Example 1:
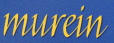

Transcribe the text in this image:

murein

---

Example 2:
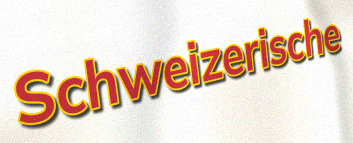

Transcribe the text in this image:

Schweizerische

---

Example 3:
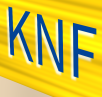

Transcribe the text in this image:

KNF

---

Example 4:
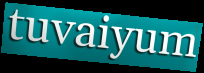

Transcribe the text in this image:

tuvaiyum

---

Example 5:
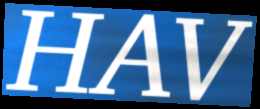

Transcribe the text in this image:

HAV